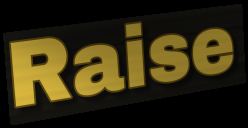
Raise